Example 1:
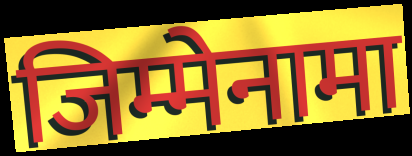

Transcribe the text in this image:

जिम्मेनामा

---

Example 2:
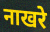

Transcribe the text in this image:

नाखरे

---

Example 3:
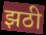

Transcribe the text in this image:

झठी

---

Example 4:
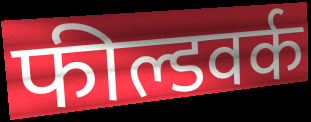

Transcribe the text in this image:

फील्डवर्क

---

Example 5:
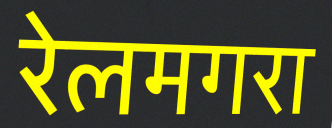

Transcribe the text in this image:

रेलमगरा